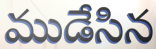
ముడేసిన